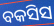
ବକସିସ